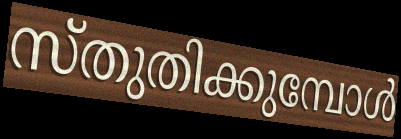
സ്തുതിക്കുമ്പോൾ